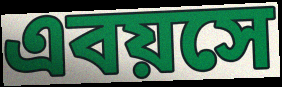
এবয়সে